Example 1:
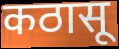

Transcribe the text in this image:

कठासू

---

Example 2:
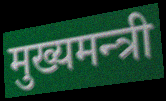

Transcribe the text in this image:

मुख्यमन्त्री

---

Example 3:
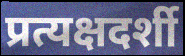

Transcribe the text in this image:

प्रत्यक्षदर्शी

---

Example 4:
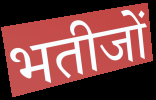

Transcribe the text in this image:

भतीजों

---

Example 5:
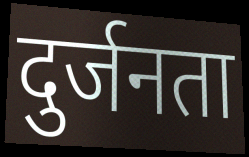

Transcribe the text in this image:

दुर्जनता